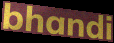
bhandi